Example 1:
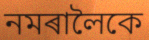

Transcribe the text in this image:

নমৰালৈকে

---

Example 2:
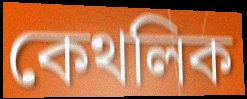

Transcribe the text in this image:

কেথলিক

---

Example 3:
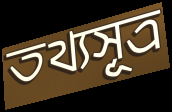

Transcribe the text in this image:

তথ্যসূত্ৰ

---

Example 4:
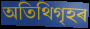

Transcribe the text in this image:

অতিথিগৃহৰ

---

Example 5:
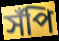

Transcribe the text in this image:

সঁপি